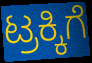
ಟ್ರಕ್ಕಿಗೆ